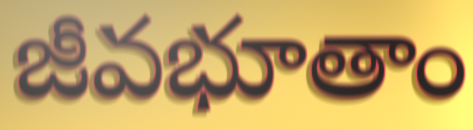
జీవభూతాం